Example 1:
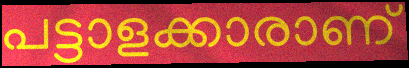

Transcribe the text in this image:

പട്ടാളക്കാരാണ്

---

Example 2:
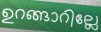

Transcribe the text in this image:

ഉറങ്ങാറില്ലേ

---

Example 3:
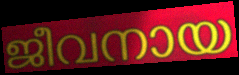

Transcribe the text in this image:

ജീവനായ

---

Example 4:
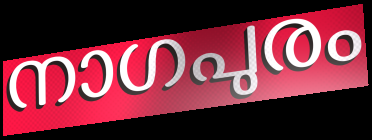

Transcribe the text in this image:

നാഗപുരം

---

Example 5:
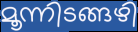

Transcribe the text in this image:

മൂന്നിടങ്ങഴി